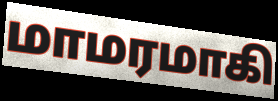
மாமரமாகி